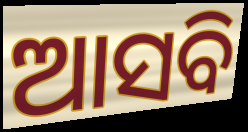
ଆସବି